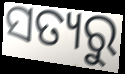
ସତ୍ୟରୁ